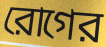
রোগের